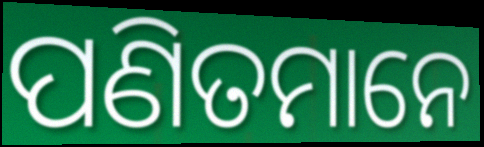
ପଣିତମାନେ